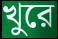
খুরে